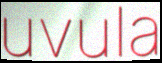
uvula